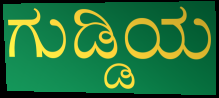
ಗುಡ್ಡಿಯ